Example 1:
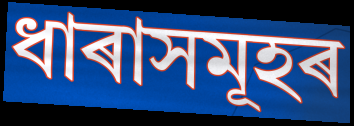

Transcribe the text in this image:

ধাৰাসমূহৰ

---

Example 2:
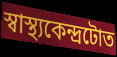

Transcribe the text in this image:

স্বাস্থ্যকেন্দ্ৰটোত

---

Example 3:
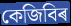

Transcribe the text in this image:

কেজিবিৰ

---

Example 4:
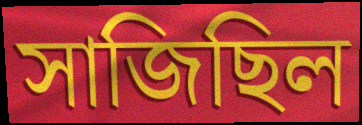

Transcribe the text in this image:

সাজিছিল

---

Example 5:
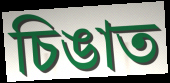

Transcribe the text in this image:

চিঙাত